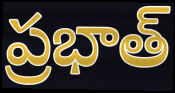
ప్రభాత్